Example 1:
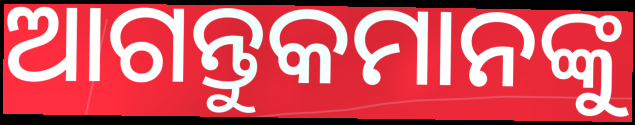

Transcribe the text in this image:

ଆଗନ୍ତୁକମାନଙ୍କୁ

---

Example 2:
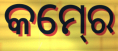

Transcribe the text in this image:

କମ୍‍ରେ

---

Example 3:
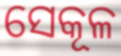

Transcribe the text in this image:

ସେକୂଳ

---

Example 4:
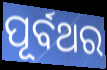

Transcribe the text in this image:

ପୂର୍ବଥର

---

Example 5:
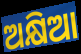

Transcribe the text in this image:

ଅକ୍ଷିଆ